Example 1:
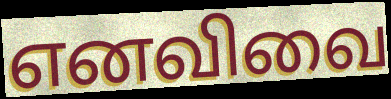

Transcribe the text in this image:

எனவிவை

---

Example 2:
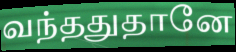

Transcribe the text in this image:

வந்ததுதானே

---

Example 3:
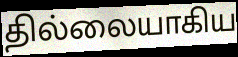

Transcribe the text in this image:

தில்லையாகிய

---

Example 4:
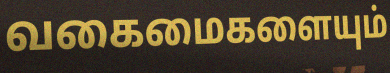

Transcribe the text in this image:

வகைமைகளையும்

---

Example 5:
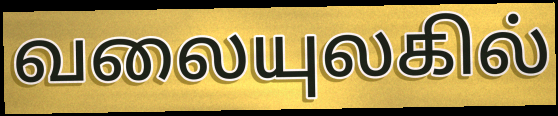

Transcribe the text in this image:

வலையுலகில்